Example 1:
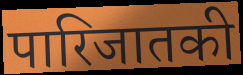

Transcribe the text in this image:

पारिजातकी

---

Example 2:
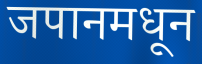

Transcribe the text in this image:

जपानमधून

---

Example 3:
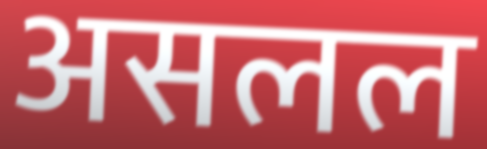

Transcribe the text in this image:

असलल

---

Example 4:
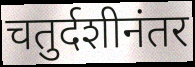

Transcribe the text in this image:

चतुर्दशीनंतर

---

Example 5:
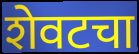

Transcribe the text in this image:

शेवटचा